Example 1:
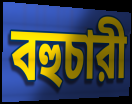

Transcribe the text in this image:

বহুচারী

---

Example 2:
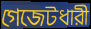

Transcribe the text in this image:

গেজেটধারী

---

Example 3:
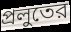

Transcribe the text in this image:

প্রলুতের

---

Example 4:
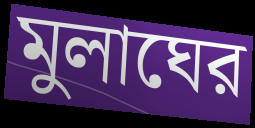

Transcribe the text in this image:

মুলাঘের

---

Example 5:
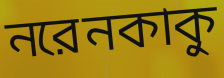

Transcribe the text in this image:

নরেনকাকু